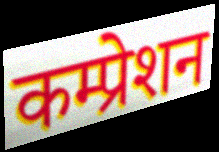
कम्प्रेशन